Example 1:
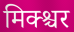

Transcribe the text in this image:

मिक्श्चर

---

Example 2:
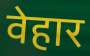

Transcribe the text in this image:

वेहार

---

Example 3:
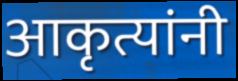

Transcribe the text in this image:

आकृत्यांनी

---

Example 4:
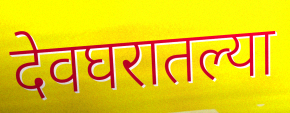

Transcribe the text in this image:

देवघरातल्या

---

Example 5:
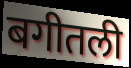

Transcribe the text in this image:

बगीतली